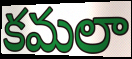
కమలా